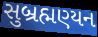
સુબ્રહ્મણ્યન